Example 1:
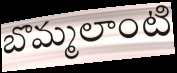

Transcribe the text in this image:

బొమ్మలాంటి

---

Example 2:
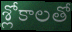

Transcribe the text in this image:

శ్లోకాలతో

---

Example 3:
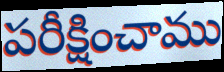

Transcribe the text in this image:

పరీక్షించాము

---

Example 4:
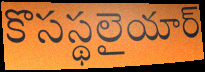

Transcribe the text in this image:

కొసస్థలైయార్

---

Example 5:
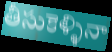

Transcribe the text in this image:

తీసుకెళ్ళినా